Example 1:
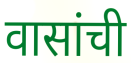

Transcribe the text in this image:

वासांची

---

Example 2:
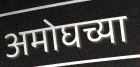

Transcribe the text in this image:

अमोघच्या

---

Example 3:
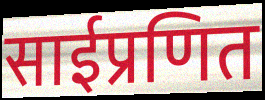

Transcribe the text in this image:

साईप्रणित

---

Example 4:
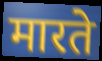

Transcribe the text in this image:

मारते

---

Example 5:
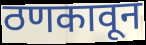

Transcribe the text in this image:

ठणकावून